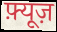
फ़्यूज़